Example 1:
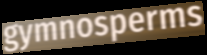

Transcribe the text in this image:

gymnosperms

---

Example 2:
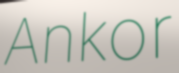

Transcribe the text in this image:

Ankor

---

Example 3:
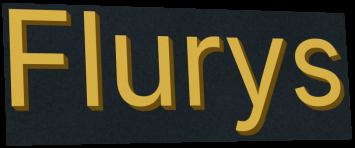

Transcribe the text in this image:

Flurys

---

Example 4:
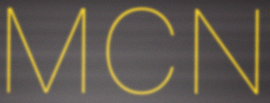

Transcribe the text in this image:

MCN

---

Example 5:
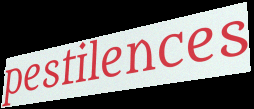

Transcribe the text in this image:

pestilences